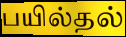
பயில்தல்